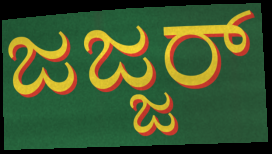
ಜಜ್ಜರ್